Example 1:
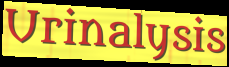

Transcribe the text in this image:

Urinalysis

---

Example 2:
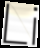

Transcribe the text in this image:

Li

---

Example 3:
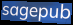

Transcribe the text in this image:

sagepub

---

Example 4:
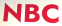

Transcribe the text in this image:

NBC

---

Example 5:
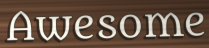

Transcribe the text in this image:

Awesome